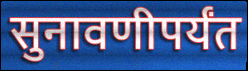
सुनावणीपर्यंत